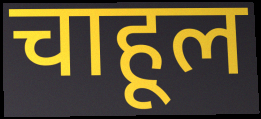
चाहूल